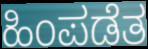
ಹಿಂಪಡೆತ